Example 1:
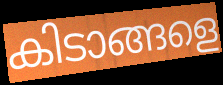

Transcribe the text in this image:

കിടാങ്ങളെ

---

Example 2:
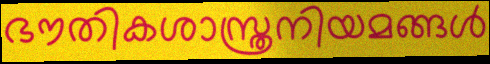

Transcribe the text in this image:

ഭൗതികശാസ്ത്രനിയമങ്ങൾ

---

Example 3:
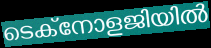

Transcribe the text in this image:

ടെക്‌നോളജിയിൽ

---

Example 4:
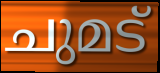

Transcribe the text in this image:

ചുമട്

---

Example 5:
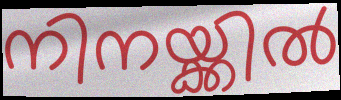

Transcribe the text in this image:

നിനയ്ക്കിൽ